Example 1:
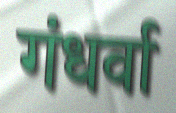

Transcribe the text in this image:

गंधर्वा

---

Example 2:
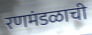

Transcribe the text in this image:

रणमंडळाची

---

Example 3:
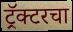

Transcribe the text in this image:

ट्रॅक्टरचा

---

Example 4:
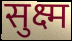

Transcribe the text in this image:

सुक्ष्म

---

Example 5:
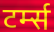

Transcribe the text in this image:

टर्म्स